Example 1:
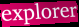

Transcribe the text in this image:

explorer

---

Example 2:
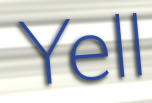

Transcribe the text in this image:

Yell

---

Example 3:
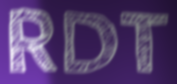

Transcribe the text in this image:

RDT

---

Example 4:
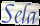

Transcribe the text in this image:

Sela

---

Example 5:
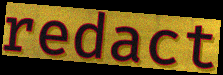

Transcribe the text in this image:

redact